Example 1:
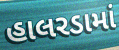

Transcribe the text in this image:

હાલરડામાં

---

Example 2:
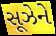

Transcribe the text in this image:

સૂઝેને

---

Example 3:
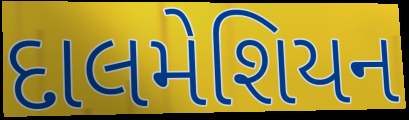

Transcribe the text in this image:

દાલમેશિયન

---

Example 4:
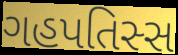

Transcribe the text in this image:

ગહપતિસ્સ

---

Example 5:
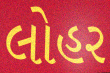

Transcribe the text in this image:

લોહર